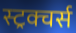
स्ट्रक्चर्स